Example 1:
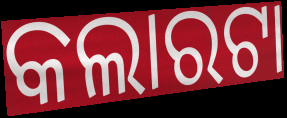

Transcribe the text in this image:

କଲାରଟା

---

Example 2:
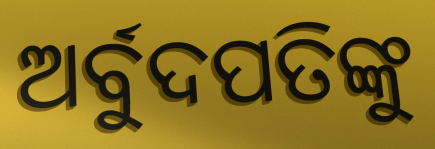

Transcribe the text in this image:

ଅର୍ବୁଦପତିଙ୍କୁ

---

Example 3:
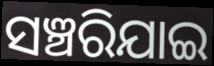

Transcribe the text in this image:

ସଞ୍ଚରିଯାଇ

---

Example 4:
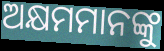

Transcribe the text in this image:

ଅକ୍ଷମମାନଙ୍କୁ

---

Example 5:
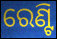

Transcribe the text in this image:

ରେଣ୍ଟି